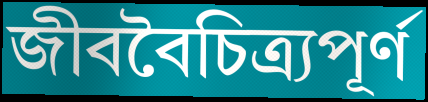
জীববৈচিত্র্যপূর্ণ